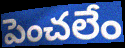
పెంచలేం